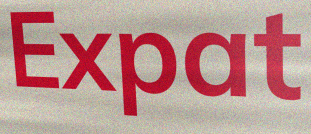
Expat